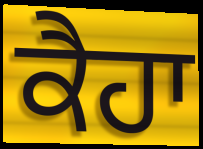
ਕੈਹਾ